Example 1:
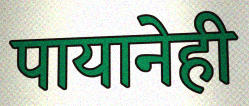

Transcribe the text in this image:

पायानेही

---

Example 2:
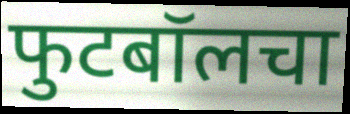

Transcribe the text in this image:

फुटबॉलचा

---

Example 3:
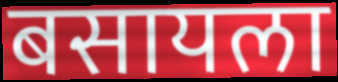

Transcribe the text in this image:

बसायला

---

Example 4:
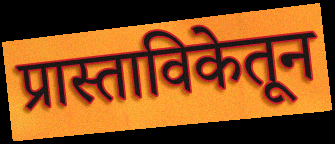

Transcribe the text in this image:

प्रास्ताविकेतून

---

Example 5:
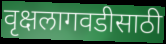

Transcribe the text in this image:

वृक्षलागवडीसाठी